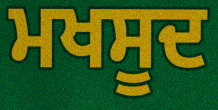
ਮਖਸੂਦ